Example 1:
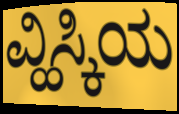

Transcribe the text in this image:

ವ್ಹಿಸ್ಕಿಯ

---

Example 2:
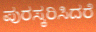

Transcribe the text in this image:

ಪುರಸ್ಕರಿಸಿದರೆ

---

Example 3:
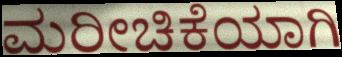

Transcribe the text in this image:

ಮರೀಚಿಕೆಯಾಗಿ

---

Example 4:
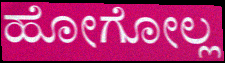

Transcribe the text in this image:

ಹೋಗೋಲ್ಲ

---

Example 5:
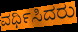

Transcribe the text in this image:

ವರ್ಧಿಸಿದರು